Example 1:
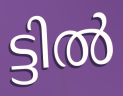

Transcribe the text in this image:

ട്ടിൽ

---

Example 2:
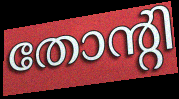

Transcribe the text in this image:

തോന്റി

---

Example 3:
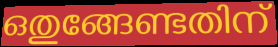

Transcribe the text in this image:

ഒതുങ്ങേണ്ടതിന്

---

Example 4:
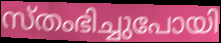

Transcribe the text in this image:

സ്തംഭിച്ചുപോയി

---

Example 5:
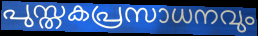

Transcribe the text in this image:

പുസ്തകപ്രസാധനവും